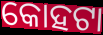
କୋହଟା